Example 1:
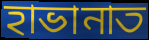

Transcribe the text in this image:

হাভানাত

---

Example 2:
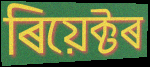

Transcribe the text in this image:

ৰিয়েক্টৰ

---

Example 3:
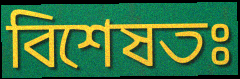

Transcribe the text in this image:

বিশেষতঃ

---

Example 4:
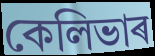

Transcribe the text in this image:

কেলিভাৰ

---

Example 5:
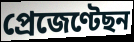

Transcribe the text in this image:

প্ৰেজেণ্টেছন